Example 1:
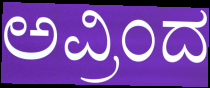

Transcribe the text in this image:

ಅವ್ರಿಂದ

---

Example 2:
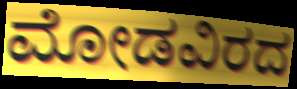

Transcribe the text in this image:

ಮೋಡವಿರದ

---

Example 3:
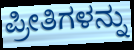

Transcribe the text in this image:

ಪ್ರೀತಿಗಳನ್ನು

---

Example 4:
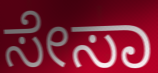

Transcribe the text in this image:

ಸೇಸಾ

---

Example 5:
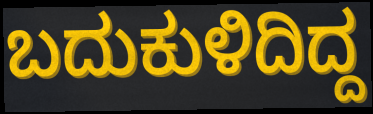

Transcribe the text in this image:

ಬದುಕುಳಿದಿದ್ದ